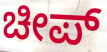
ಚೀಪ್